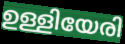
ഉള്ളിയേരി